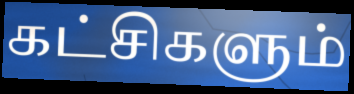
கட்சிகளும்